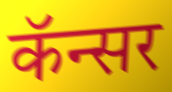
कॅन्सर